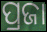
ପ୍ରଜା